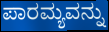
ಪಾರಮ್ಯವನ್ನು